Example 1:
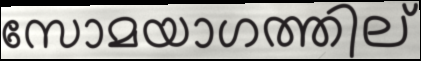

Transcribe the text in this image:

സോമയാഗത്തില്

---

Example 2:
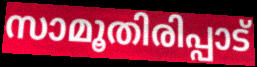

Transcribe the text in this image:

സാമൂതിരിപ്പാട്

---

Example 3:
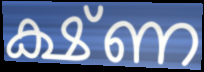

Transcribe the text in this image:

ക്ഷ്ണ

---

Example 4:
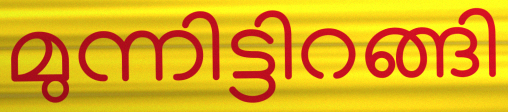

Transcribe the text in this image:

മുന്നിട്ടിറങ്ങി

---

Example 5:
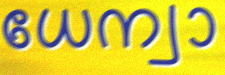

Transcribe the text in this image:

ധേന്വാ